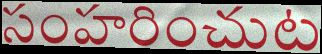
సంహరించుట